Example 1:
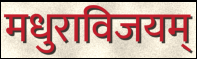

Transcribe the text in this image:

मधुराविजयम्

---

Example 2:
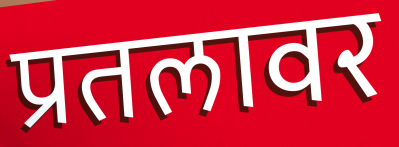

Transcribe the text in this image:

प्रतलावर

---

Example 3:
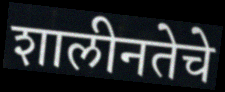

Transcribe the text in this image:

शालीनतेचे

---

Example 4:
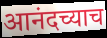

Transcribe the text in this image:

आनंदच्याच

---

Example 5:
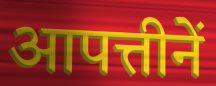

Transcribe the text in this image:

आपत्तीनें